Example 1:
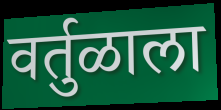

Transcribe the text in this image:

वर्तुळाला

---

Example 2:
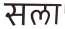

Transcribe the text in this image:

सला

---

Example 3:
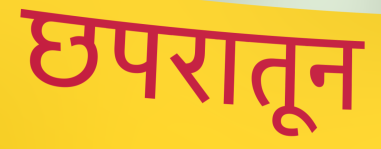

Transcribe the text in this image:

छपरातून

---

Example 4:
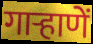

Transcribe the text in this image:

गार्‍हाणें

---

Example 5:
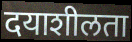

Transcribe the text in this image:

दयाशीलता